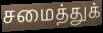
சமைத்துக்